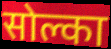
सोल्का